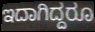
ಇದಾಗಿದ್ದರೂ